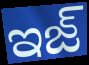
ఇజ్